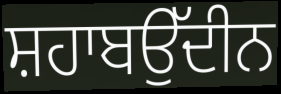
ਸ਼ਹਾਬਉੱਦੀਨ